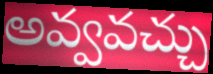
అవ్వవచ్చు